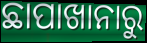
ଛାପାଖାନାରୁ